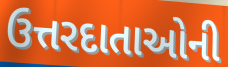
ઉત્તરદાતાઓની